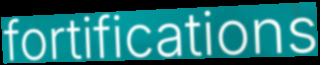
fortifications